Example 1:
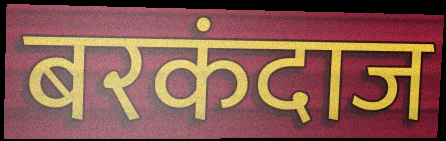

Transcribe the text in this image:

बरकंदाज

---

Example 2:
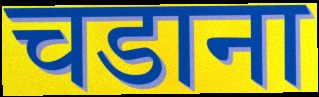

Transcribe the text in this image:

चडाना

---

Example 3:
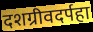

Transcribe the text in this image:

दशग्रीवदर्पहा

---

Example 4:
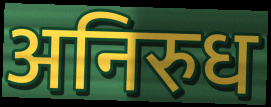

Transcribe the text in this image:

अनिरुध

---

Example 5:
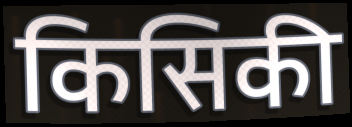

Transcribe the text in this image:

किसिकी